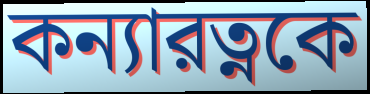
কন্যারত্নকে